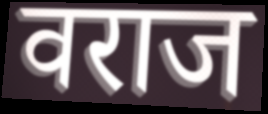
वराज